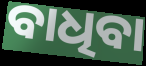
ବାଧିବା